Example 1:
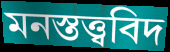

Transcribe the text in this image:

মনস্তত্ত্ববিদ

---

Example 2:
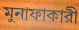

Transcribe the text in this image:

মুনাফাকারী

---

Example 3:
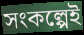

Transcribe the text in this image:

সংকল্পেই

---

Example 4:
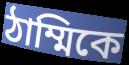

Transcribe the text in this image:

ঠাম্মিকে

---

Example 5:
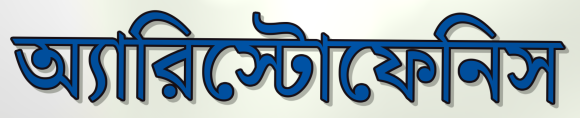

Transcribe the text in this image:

অ্যারিস্টোফেনিস